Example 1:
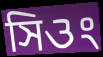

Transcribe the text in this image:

সিওং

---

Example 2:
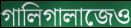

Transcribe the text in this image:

গালিগালাজেও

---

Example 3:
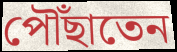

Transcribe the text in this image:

পৌঁছাতেন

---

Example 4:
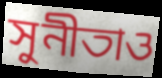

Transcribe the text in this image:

সুনীতাও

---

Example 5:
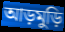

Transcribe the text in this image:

আড়মুড়ি